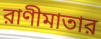
রাণীমাতার